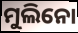
ମୁଲିନୋ